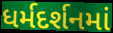
ધર્મદર્શનમાં